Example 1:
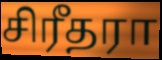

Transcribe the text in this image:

சிரீதரா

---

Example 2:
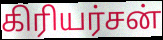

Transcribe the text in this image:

கிரியர்சன்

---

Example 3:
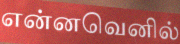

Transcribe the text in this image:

என்னவெனில்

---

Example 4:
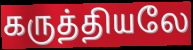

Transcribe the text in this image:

கருத்தியலே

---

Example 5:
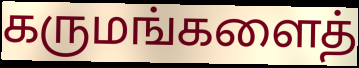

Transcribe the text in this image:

கருமங்களைத்